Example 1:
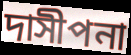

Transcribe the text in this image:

দাসীপনা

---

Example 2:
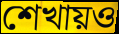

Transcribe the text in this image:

শেখায়ও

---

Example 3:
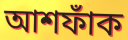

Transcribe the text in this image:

আশফাঁক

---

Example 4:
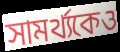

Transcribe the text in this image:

সামর্থ্যকেও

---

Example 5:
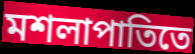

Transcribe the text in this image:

মশলাপাতিতে